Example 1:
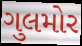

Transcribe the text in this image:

ગુલમોર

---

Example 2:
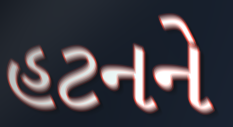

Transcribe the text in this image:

હટનને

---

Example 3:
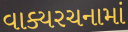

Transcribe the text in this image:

વાક્યરચનામાં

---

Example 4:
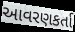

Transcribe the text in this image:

આવરણકર્તા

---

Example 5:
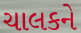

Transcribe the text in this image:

ચાલકને